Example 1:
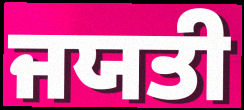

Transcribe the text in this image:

ਜਯਤੀ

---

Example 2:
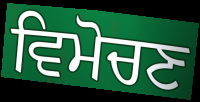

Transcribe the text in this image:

ਵਿਮੋਚਣ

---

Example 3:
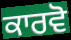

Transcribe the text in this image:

ਕਾਰਵੋ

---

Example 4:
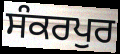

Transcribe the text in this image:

ਸੰਕਰਪੁਰ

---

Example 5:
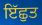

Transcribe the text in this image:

ਇੱਛੁਤ